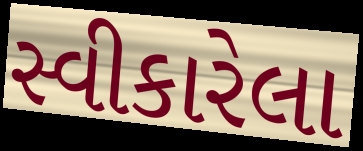
સ્વીકારેલા